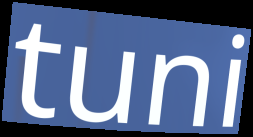
tuni